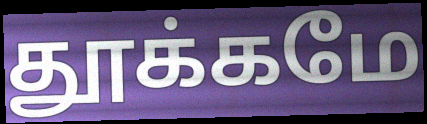
தூக்கமே